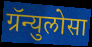
ग्रॅन्युलोसा